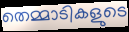
തെമ്മാടികളുടെ